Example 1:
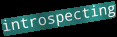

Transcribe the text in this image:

introspecting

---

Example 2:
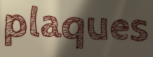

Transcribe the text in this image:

plaques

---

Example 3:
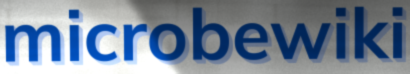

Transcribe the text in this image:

microbewiki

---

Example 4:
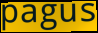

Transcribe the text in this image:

pagus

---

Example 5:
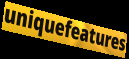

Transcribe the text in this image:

uniquefeatures